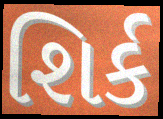
શિર્ક